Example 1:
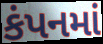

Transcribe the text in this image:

કંપનમાં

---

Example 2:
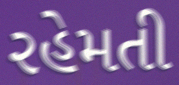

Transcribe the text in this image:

રહેમતી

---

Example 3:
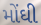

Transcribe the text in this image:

મોંઘી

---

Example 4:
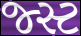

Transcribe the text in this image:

જ્સ્ટ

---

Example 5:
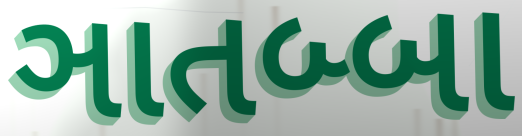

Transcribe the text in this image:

ઞાતબ્બા